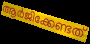
ആർജിക്കേണ്ടത്